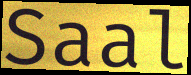
Saal